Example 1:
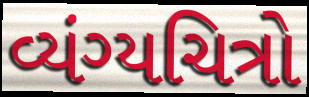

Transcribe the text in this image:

વ્યંગ્યચિત્રો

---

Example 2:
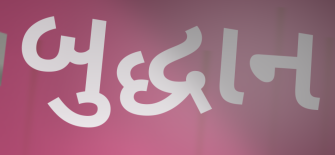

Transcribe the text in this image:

બુદ્ધાન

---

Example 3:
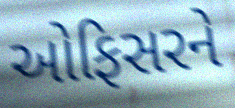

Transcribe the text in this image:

ઓફિસરને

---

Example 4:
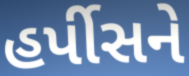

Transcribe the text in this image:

હર્પીસને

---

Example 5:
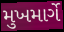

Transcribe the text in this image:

મુખમાર્ગે